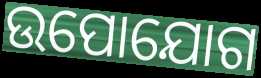
ଉପୋଯୋଗ